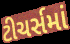
ટીચર્સમાં